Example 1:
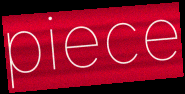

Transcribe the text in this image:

piece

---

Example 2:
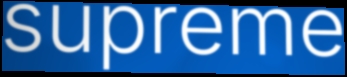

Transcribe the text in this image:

supreme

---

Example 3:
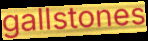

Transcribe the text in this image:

gallstones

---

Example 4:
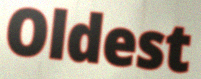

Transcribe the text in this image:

Oldest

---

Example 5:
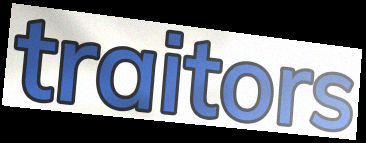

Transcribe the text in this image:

traitors